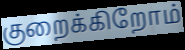
குறைக்கிறோம்